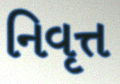
નિવૃત્ત